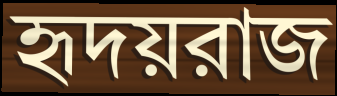
হৃদয়রাজ